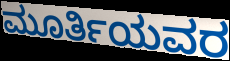
ಮೂರ್ತಿಯವರ